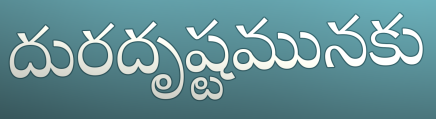
దురదృష్టమునకు